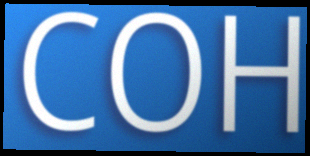
COH